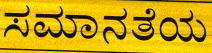
ಸಮಾನತೆಯ